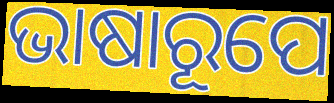
ଭାଷାରୂପେ